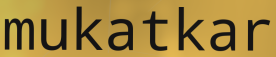
mukatkar